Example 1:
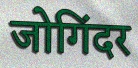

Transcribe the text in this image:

जोगिंदर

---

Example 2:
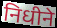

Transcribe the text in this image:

निधीने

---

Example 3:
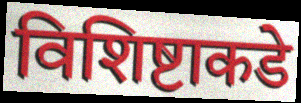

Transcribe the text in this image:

विशिष्टाकडे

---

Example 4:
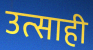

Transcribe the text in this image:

उत्साही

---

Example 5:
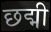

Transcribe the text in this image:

छद्मी